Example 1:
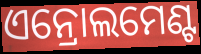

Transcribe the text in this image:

ଏନ୍ରୋଲମେଣ୍ଟ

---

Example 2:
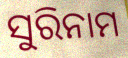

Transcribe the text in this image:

ସୁରିନାମ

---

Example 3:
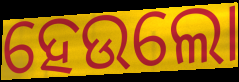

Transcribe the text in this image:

ହେଉଲୋ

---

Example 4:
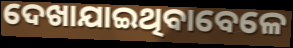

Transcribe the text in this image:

ଦେଖାଯାଇଥିବାବେଳେ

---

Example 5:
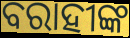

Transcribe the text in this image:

ବରାହୀଙ୍କ